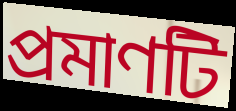
প্ৰমাণটি